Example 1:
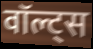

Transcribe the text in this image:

वॉल्ट्स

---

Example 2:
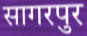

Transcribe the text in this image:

सागरपुर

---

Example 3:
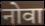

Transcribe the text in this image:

नोवा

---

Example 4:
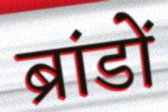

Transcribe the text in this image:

ब्रांडों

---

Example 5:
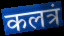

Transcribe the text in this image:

कलत्रं